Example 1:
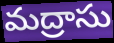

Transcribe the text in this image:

మద్రాసు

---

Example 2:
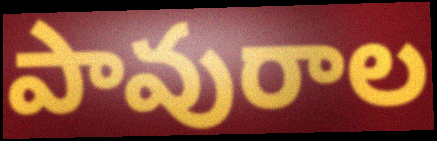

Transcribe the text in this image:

పావురాల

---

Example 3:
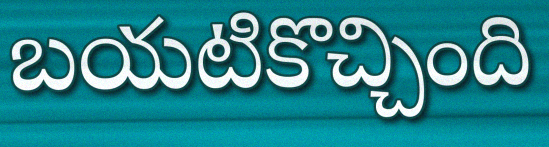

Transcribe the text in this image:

బయటికొచ్చింది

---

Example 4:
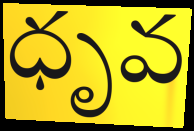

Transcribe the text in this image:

ధృవ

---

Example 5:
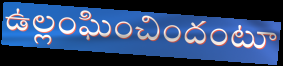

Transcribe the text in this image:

ఉల్లంఘించిందంటూ